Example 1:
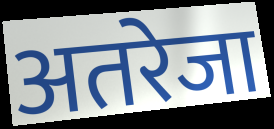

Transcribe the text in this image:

अतरेजा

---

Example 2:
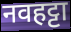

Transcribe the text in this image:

नवहट्टा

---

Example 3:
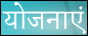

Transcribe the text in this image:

योजनाएं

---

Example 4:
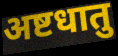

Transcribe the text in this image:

अष्टधातु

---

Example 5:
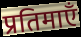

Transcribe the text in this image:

प्रतिमाएँ